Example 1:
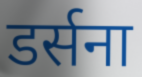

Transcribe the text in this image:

डर्सना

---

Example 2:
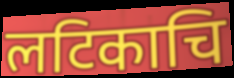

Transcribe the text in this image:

लटिकाचि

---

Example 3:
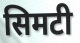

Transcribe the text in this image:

सिमटी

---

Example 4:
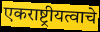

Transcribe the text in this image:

एकराष्ट्रीयत्वाचे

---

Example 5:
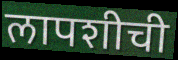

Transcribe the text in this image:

लापशीची